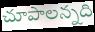
చూపాలన్నది